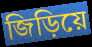
জিড়িয়ে